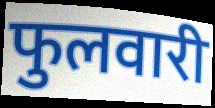
फुलवारी